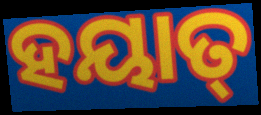
ହୟାତ୍